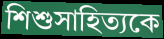
শিশুসাহিত্যকে